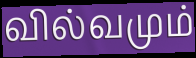
வில்வமும்